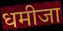
धमीजा